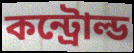
কন্ট্রোল্ড